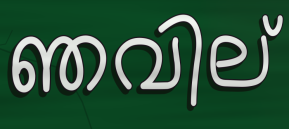
ഞവില്